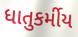
ધાતુકર્મીય